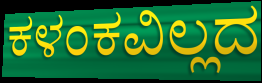
ಕಳಂಕವಿಲ್ಲದ